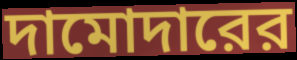
দামোদারের